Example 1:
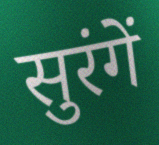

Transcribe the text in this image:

सुरंगें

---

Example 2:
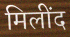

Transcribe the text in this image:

मिलींद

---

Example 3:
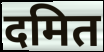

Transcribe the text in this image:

दमित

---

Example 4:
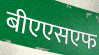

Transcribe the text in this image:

बीएएसएफ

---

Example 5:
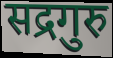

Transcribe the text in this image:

सद्रगुरु